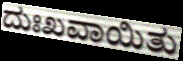
ದುಃಖವಾಯಿತು